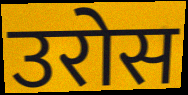
उरोस